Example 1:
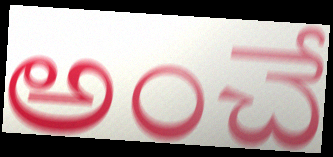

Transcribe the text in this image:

అంచే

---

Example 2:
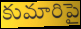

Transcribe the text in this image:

కుమారిపై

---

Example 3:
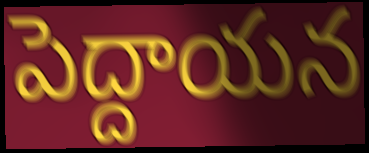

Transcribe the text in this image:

పెద్దాయన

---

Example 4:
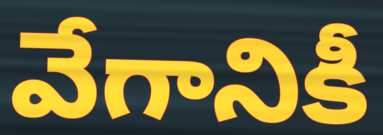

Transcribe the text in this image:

వేగానికీ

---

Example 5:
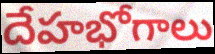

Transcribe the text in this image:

దేహభోగాలు